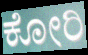
ಕೋರಿ